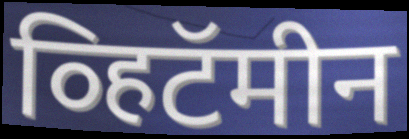
व्हिटॅमीन